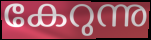
കേറുന്നു